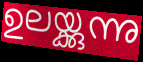
ഉലയ്ക്കുന്നു